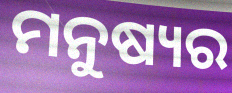
ମନୁଷ୍ୟର